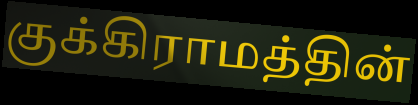
குக்கிராமத்தின்